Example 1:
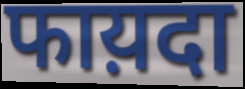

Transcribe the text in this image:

फाय़दा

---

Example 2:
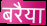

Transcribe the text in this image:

बरैया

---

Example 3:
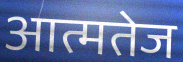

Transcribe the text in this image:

आत्मतेज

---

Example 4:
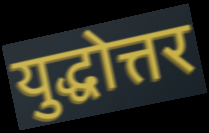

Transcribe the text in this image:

युद्धोत्तर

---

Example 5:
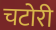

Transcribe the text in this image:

चटोरी